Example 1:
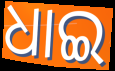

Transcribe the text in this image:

ଧାଇ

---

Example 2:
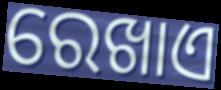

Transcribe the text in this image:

ରେଖାଏ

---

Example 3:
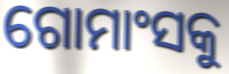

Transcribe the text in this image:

ଗୋମାଂସକୁ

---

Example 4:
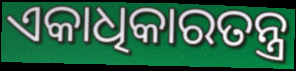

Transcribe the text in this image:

ଏକାଧିକାରତନ୍ତ୍ର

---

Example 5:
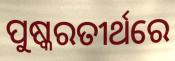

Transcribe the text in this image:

ପୁଷ୍କରତୀର୍ଥରେ